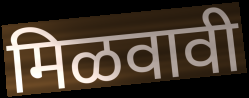
मिळवावी